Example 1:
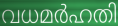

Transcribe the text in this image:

വധമർഹതി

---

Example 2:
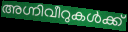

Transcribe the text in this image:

അഗ്നിവീറുകൾക്ക്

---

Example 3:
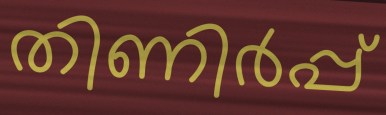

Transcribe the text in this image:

തിണിർപ്പ്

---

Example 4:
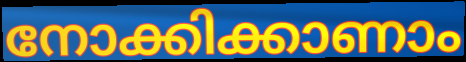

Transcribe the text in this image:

നോക്കിക്കാണാം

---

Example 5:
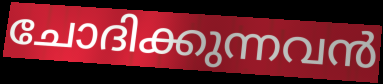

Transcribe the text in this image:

ചോദിക്കുന്നവൻ